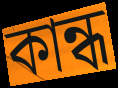
কান্ধ